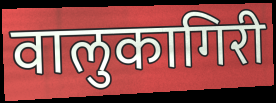
वालुकागिरी